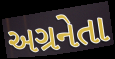
અગ્રનેતા